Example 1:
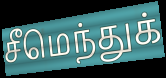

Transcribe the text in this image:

சீமெந்துக்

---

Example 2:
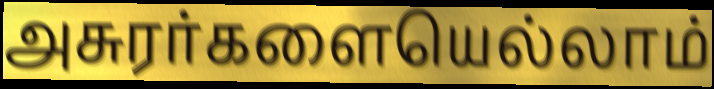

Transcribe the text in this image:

அசுரர்களையெல்லாம்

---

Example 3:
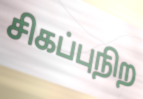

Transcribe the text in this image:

சிகப்புநிற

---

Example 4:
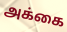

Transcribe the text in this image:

அக்கை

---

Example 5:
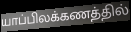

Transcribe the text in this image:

யாப்பிலக்கணத்தில்